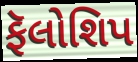
ફૅલોશિપ